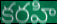
కరహి